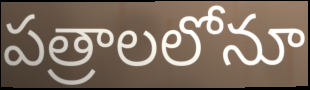
పత్రాలలోనూ